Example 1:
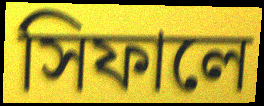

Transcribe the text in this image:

সিফালে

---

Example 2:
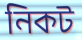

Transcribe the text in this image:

নিকট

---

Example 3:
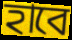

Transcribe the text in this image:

হাবে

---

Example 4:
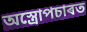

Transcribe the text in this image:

অস্ত্ৰোপচাৰত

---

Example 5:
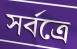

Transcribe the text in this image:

সৰ্বত্ৰে